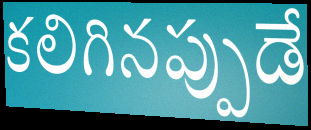
కలిగినప్పుడే